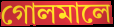
গোলমালে